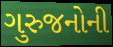
ગુરુજનોની